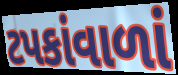
ટપકાંવાળાં